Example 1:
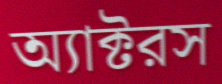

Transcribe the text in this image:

অ্যাক্টরস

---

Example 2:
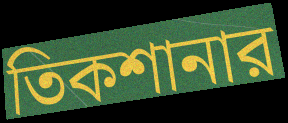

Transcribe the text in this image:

তিকশানার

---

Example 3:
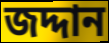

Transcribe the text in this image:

জদ্দান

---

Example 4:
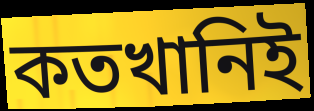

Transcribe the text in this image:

কতখানিই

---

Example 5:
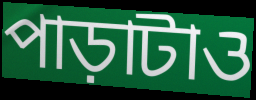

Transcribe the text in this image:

পাড়াটাও